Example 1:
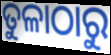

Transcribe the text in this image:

ତୁଳାଠାରୁ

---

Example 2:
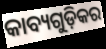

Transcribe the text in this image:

କାବ୍ୟଗୁଡ଼ିକର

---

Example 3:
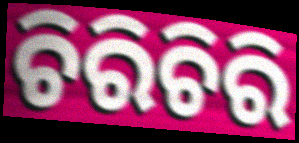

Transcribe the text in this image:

ଚିରିଚିରି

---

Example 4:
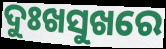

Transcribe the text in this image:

ଦୁଃଖସୁଖରେ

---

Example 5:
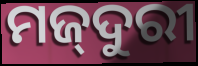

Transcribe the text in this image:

ମଜ୍‌ଦୁରୀ